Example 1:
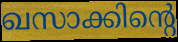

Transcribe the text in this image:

ഖസാക്കിന്റെ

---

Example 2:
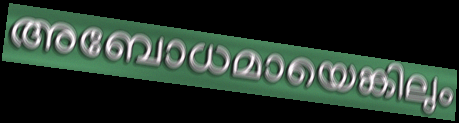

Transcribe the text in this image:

അബോധമായെങ്കിലും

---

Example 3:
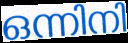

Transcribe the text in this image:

ഒന്നിനി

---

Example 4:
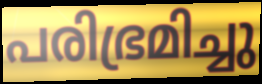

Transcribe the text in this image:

പരിഭ്രമിച്ചു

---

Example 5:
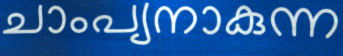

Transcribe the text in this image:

ചാംപ്യനാകുന്ന